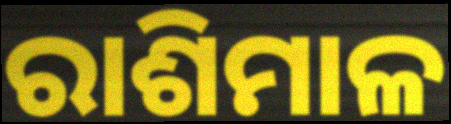
ରାଶିମାଳ